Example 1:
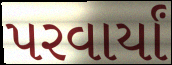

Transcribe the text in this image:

પરવાર્યાં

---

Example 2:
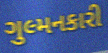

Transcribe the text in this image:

ગુલ્મનકારી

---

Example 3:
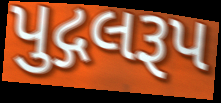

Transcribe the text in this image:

પુદ્ગલરૂપ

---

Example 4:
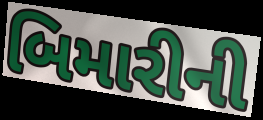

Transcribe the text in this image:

બિમારીની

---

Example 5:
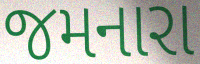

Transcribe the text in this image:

જમનારા